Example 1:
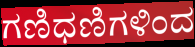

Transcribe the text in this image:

ಗಣಿಧಣಿಗಳಿಂದ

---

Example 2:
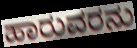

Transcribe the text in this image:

ಹಾರುವರನು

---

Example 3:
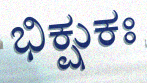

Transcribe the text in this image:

ಭಿಕ್ಷುಕಃ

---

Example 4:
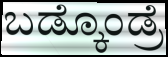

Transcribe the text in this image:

ಬಡ್ಕೊಂಡ್ರೆ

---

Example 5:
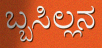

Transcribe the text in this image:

ಬ್ಬಸಿಲ್ಲನ